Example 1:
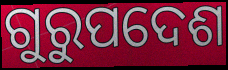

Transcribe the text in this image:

ଗୁରୁପଦେଶ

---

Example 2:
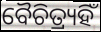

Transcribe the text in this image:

ବୈଚିତ୍ର୍ୟହିଁ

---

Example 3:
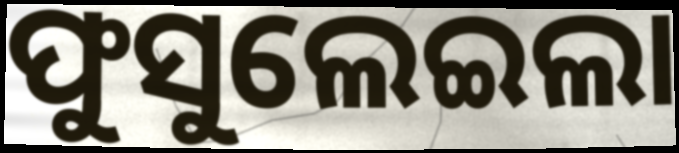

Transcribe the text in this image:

ଫୁସୁଲେଇଲା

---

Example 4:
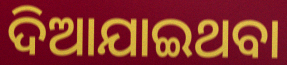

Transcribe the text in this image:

ଦିଆଯାଇଥବା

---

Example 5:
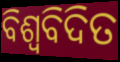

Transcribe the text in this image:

ବିଶ୍ବବିଦିତ